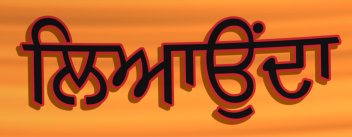
ਲਿਆਉਂਦਾ